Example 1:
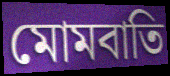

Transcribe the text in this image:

মোমবাতি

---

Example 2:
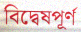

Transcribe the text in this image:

বিদ্বেষপূর্ণ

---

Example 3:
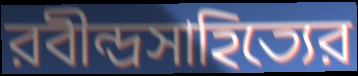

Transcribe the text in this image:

রবীন্দ্রসাহিত্যের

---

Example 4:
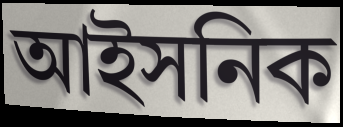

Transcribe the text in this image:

আইসনিক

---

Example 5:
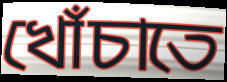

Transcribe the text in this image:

খোঁচাতে